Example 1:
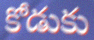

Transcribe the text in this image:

కోడుకు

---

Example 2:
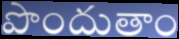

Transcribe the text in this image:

పొందుతాం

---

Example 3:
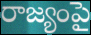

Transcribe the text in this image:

రాజ్యంపై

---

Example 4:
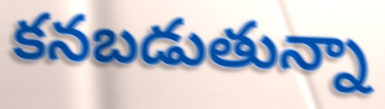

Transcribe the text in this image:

కనబడుతున్నా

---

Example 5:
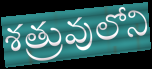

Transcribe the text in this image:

శత్రువులోని